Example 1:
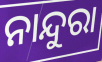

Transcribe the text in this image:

ନାନ୍ଦୁରା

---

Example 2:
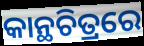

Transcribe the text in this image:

କାନ୍ଥଚିତ୍ରରେ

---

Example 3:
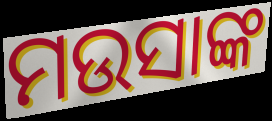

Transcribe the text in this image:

ମଉସାଙ୍କ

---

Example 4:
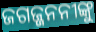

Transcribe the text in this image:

ଜଗଜ୍ଜନନୀଙ୍କୁ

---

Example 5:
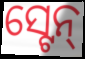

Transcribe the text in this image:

ସ୍ଟେନ୍